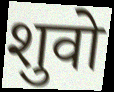
शुवो